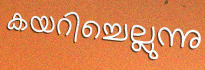
കയറിച്ചെല്ലുന്നു